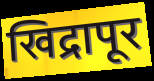
खिद्रापूर